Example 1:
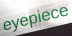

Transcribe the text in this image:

eyepiece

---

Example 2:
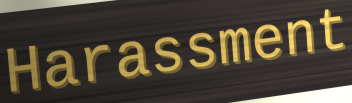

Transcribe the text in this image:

Harassment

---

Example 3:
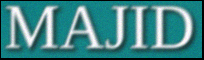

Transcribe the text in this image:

MAJID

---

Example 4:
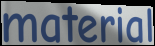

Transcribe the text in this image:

material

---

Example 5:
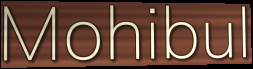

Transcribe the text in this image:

Mohibul